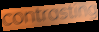
contrasting